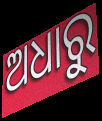
ଅଧାରୁ